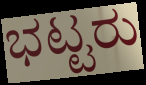
ಭಟ್ಟರು